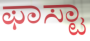
ಫಾಸ್ಟಾ